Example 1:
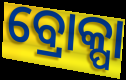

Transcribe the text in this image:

ବ୍ରୋକ୍ପା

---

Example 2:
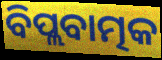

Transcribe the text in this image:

ବିପ୍ଲବାତ୍ମକ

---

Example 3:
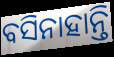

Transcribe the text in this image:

ବସିନାହାନ୍ତି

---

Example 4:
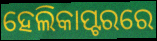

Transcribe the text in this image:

ହେଲିକାପ୍ଟରରେ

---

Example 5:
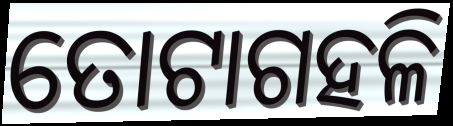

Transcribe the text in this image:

ତୋଟାଗହଳି